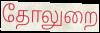
தோலுறை